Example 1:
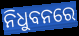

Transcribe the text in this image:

ନିଧୁବନରେ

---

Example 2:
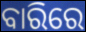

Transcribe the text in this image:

ବାରିରେ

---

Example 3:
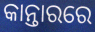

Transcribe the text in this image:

କାନ୍ତାରରେ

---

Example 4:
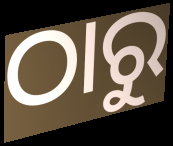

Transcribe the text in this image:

ଠାରୁ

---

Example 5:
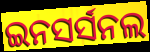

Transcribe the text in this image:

ଇନସର୍ସନଲ